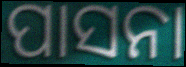
ପାସନା